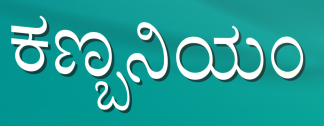
ಕಣ್ಬನಿಯಂ